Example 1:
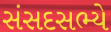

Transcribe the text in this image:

સંસદસભ્યે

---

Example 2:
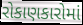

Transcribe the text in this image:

રોકાણકારોમાં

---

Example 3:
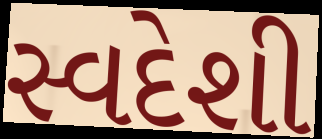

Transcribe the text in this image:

સ્વદેશી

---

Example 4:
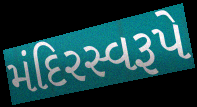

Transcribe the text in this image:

મંદિરસ્વરૂપે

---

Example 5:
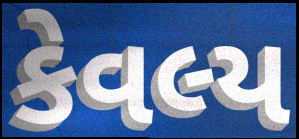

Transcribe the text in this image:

કેવલ્ય